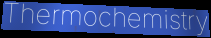
Thermochemistry